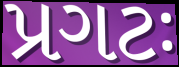
પ્રગટઃ